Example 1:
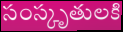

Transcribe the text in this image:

సంస్కృతులకి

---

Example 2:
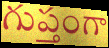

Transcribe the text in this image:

గుప్తంగా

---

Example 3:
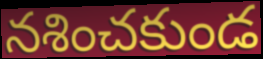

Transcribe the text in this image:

నశించకుండ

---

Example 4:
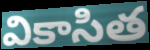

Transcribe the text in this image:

వికాసిత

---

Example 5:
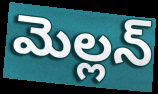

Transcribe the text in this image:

మెల్లన్